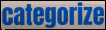
categorize